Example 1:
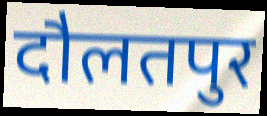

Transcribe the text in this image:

दौलतपुर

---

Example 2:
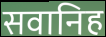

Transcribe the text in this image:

सवानिह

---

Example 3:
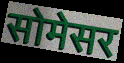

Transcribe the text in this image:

सोमेसर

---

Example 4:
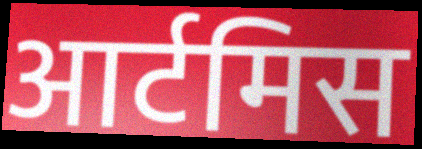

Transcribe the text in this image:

आर्टमिस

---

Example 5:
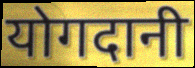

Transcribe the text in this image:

योगदानी